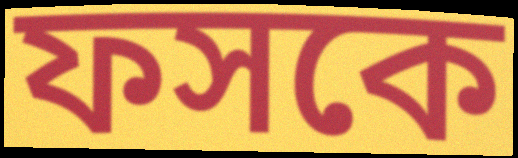
ফসকে